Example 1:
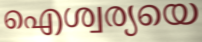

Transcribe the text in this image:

ഐശ്വര്യയെ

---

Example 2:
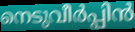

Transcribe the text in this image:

നെടുവീർപ്പിൻ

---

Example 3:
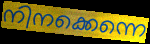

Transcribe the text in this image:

നിനക്കെന്നെ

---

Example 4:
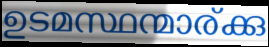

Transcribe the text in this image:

ഉടമസ്ഥന്മാര്ക്കു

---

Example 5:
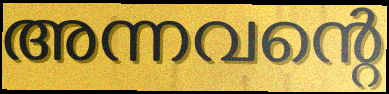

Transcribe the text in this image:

അന്നവന്റെ